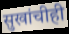
सुखांचीही